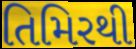
તિમિરથી